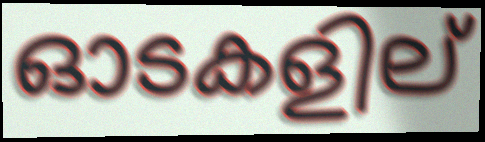
ഓടകളില്